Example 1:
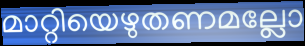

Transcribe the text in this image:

മാറ്റിയെഴുതണമല്ലോ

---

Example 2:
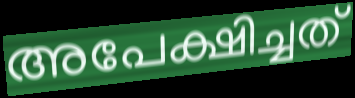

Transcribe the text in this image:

അപേക്ഷിച്ചത്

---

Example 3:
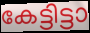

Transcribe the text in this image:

കേട്ടിട്ടാ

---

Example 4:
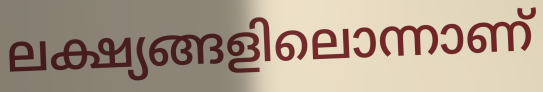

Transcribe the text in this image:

ലക്ഷ്യങ്ങളിലൊന്നാണ്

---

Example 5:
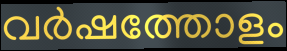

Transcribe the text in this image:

വർഷത്തോളം